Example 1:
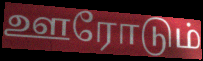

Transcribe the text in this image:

ஊரோடும்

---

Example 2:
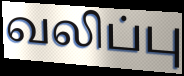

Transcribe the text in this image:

வலிப்பு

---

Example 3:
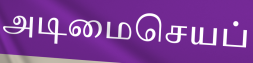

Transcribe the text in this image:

அடிமைசெயப்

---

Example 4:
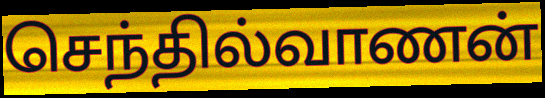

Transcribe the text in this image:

செந்தில்வாணன்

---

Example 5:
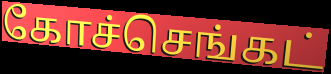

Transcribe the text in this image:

கோச்செங்கட்